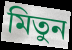
মিতুন